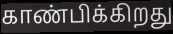
காண்பிக்கிறது